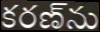
కరణ్‌ను